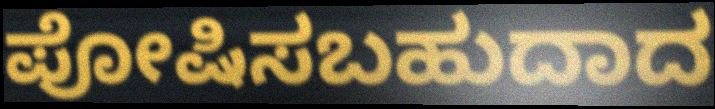
ಪೋಷಿಸಬಹುದಾದ